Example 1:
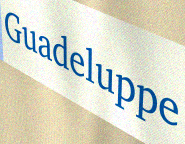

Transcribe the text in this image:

Guadeluppe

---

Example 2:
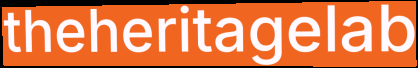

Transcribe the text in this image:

theheritagelab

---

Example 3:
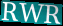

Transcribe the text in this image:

RWR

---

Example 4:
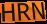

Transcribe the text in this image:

HRN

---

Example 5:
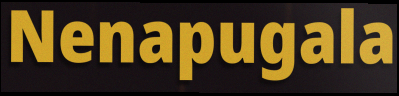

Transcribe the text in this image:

Nenapugala